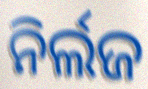
ନିର୍ଲଜ